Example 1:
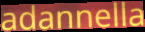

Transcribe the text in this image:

adannella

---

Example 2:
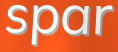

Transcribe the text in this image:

spar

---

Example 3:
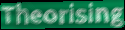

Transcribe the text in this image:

Theorising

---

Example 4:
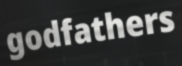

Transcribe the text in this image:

godfathers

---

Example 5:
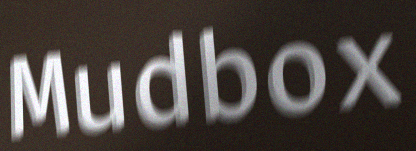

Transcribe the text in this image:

Mudbox